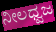
ನೀಲಧ್ವಜ